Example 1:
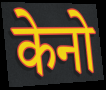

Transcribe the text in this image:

केनो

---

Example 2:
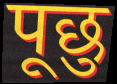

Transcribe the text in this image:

पूछु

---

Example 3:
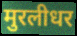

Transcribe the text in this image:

मुरलीधर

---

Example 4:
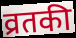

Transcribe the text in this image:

व्रतकी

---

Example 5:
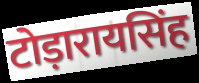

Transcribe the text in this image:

टोड़ारायसिंह